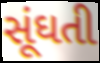
સૂંઘતી